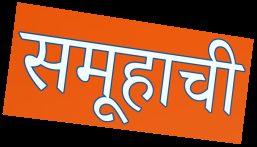
समूहाची